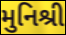
મુનિશ્રી